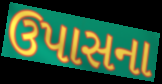
ઉપાસના